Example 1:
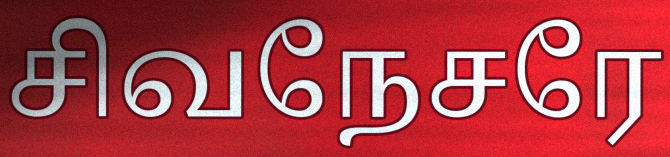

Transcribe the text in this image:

சிவநேசரே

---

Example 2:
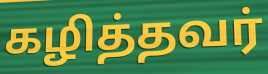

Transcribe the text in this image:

கழித்தவர்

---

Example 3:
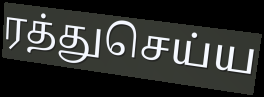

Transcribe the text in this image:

ரத்துசெய்ய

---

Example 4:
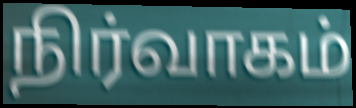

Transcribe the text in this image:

நிர்வாகம்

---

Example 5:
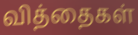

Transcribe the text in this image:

வித்தைகள்